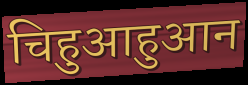
चिहुआहुआन